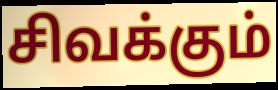
சிவக்கும்